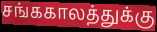
சங்ககாலத்துக்கு